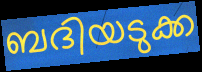
ബദിയടുക്ക